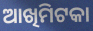
ଆଖିମିଟକା